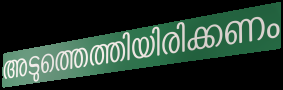
അടുത്തെത്തിയിരിക്കണം